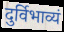
दुर्विभाव्यं